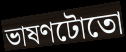
ভাষণটোতো